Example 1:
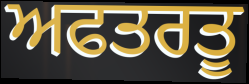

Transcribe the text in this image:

ਅਫਤਰਤੂ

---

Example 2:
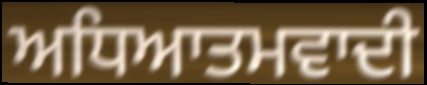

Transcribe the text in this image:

ਅਧਿਆਤਮਵਾਦੀ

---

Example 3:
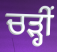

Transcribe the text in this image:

ਚੜ੍ਹੀਂ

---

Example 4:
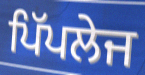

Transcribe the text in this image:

ਪਿੱਪਲੇਜ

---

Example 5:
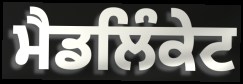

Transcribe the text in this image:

ਮੈਡਲਿੰਕੇਟ